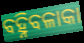
ବହ୍ନିବଳାକା